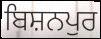
ਬਿਸ਼ਨਪੁਰ